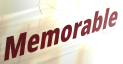
Memorable